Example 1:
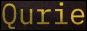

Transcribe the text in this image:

Qurie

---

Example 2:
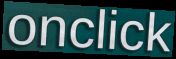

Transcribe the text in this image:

onclick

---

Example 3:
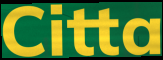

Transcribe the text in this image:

Citta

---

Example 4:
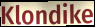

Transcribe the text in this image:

Klondike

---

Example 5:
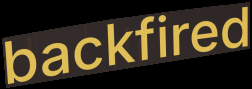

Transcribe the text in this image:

backfired